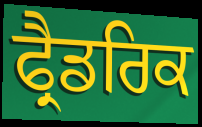
ਫ੍ਰੈਡਰਿਕ